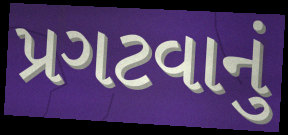
પ્રગટવાનું